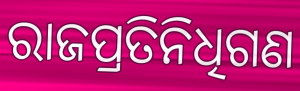
ରାଜପ୍ରତିନିଧିଗଣ